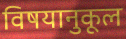
विषयानुकूल